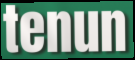
tenun